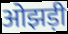
ओझड़ी